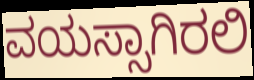
ವಯಸ್ಸಾಗಿರಲಿ